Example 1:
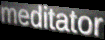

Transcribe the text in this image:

meditator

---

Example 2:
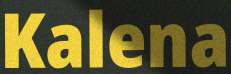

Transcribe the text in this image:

Kalena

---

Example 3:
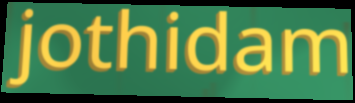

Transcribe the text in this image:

jothidam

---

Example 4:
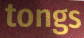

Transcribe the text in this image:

tongs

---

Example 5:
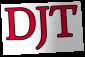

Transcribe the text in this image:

DJT